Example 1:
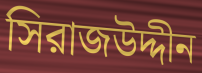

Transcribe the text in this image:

সিরাজউদ্দীন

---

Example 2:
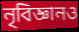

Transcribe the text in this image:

নৃবিজ্ঞানও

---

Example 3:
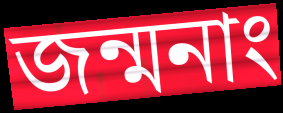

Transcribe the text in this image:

জন্মনাং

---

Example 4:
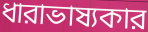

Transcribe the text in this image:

ধারাভাষ্যকার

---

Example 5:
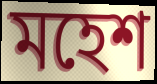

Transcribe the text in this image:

মহেশ